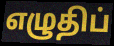
எழுதிப்